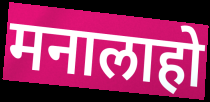
मनालाहो